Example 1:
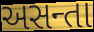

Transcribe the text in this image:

અસન્તા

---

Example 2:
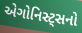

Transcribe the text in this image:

એગોનિસ્ટ્સનો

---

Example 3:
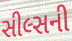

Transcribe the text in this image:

સીલ્સની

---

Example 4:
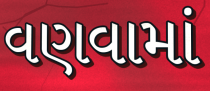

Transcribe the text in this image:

વણવામાં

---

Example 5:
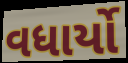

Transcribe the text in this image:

વધાર્યો